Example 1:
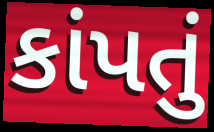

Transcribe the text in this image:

કાંપતું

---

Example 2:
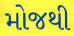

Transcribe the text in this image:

મોજથી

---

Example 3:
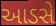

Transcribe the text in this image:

આડસે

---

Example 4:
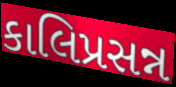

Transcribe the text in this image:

કાલિપ્રસન્ન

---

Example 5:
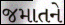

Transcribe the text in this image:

જમાતને